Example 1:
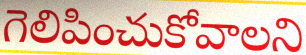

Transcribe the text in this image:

గెలిపించుకోవాలని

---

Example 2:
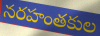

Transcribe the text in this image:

నరహంతకుల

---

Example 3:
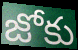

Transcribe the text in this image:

జోకు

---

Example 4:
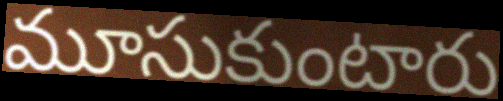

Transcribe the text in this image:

మూసుకుంటారు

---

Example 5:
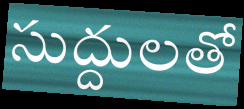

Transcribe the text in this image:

సుద్దులతో